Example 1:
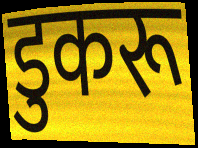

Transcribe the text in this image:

डुकरू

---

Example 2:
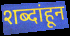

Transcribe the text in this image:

शब्दांहून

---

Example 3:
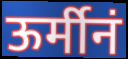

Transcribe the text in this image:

ऊर्मीनं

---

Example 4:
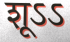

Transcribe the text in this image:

शूऽऽ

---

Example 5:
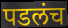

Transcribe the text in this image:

पडलंच